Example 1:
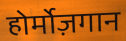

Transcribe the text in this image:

होर्मोज़गान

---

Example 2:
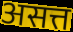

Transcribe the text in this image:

असत्त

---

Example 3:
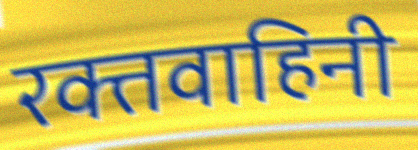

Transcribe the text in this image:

रक्तवाहिनी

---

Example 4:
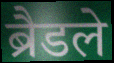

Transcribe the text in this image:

ब्रैडले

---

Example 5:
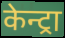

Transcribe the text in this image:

केन्ट्रा